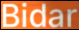
Bidar